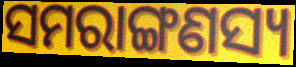
ସମରାଙ୍ଗଣସ୍ୟ